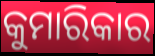
କୁମାରିକାର